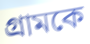
গ্রামকে